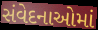
સંવેદનાઓમાં